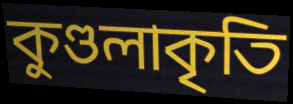
কুণ্ডলাকৃতি